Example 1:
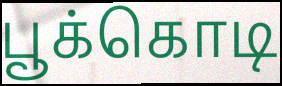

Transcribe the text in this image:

பூக்கொடி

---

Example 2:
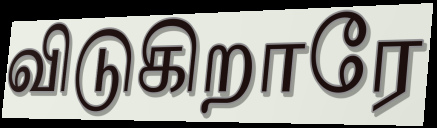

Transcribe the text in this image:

விடுகிறாரே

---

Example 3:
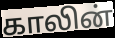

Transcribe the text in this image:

காலின்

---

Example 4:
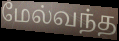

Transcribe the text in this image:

மேல்வந்த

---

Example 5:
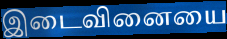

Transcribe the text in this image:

இடைவினையை